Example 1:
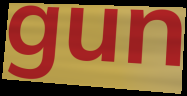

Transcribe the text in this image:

gun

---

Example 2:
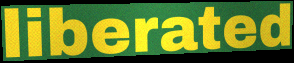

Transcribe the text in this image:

liberated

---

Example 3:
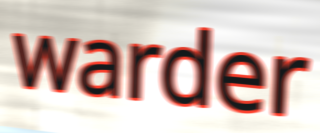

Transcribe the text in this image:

warder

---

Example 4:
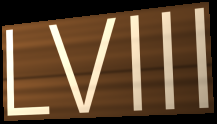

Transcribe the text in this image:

LVIII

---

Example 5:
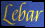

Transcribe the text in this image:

Lebar